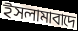
ইসলামাবাদে